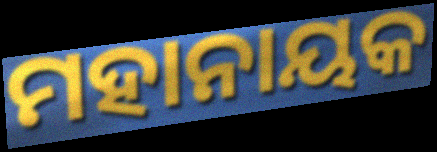
ମହାନାୟକ